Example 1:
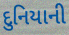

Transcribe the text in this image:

દુનિયાની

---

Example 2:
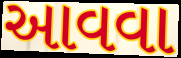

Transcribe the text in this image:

આવવા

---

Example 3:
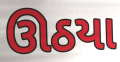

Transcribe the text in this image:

ઊઠયા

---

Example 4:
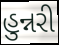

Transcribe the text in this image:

હુન્નરી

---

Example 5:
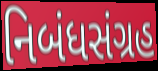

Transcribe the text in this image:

નિબંધસંગ્રહ